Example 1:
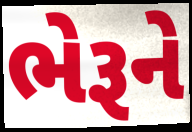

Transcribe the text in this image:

ભેરૂને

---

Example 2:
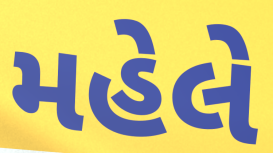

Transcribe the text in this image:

મહેલે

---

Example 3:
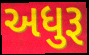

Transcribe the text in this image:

અધુરૂ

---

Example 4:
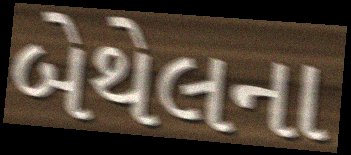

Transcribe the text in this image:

બેથેલના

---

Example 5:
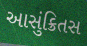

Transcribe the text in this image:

આસુંક્રિતસ